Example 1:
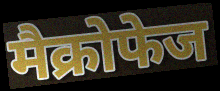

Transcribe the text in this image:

मैक्रोफेज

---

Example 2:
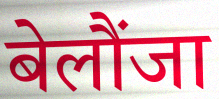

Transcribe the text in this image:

बेलौंजा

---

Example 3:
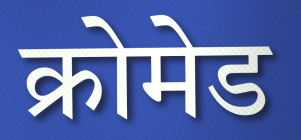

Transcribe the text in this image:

क्रोमेड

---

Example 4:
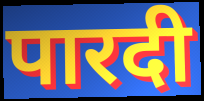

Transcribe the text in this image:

पारदी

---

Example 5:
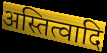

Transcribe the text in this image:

अस्तित्वादि